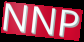
NNP